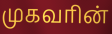
முகவரின்